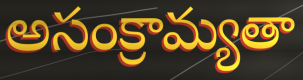
అసంక్రామ్యతా